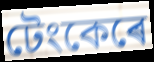
টেংকেৰে